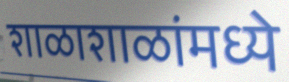
शाळाशाळांमध्ये